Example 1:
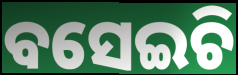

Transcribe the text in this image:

ବସେଇଚି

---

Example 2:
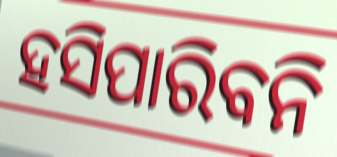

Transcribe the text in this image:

ହସିପାରିବନି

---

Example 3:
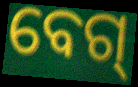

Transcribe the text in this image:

ବେଗ୍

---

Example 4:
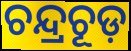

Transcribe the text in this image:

ଚନ୍ଦ୍ରଚୂଡ଼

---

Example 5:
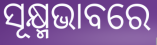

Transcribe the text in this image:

ସୂକ୍ଷ୍ମଭାବରେ